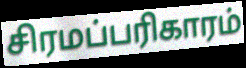
சிரமப்பரிகாரம்